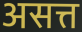
असत्त